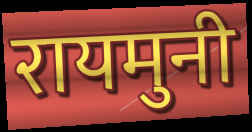
रायमुनी